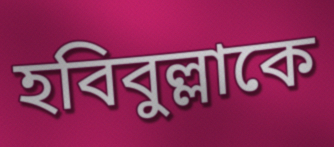
হবিবুল্লাকে